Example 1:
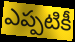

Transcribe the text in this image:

ఎప్పటికీ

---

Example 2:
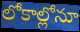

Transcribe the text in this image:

లోకాల్లోనూ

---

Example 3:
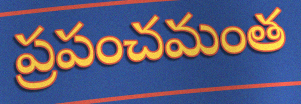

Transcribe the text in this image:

ప్రపంచమంత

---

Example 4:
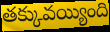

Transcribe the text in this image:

తక్కువయ్యింది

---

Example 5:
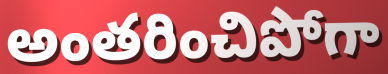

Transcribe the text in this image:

అంతరించిపోగా